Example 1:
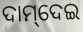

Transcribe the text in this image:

ଦାମ୍‌ଦେଇ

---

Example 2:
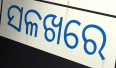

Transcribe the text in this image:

ସଳଖରେ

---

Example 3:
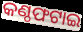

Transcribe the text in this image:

କଣ୍ଠଫଟାଇ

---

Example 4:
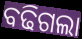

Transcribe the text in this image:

ବଢିଗଲା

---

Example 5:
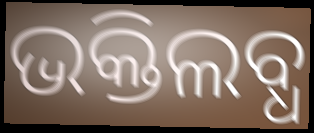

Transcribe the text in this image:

ଭକ୍ତିଲବ୍ଧ